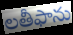
లతీఫాను